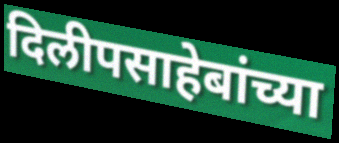
दिलीपसाहेबांच्या